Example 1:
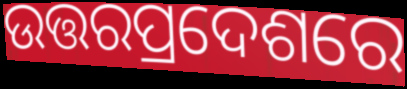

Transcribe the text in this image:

ଉତ୍ତରପ୍ରଦେଶରେ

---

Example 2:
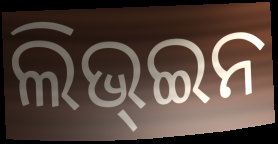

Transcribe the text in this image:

ଲିଭ୍ଇନ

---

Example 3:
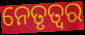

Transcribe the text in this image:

ନେତୃତ୍ଵର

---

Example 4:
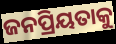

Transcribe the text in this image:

ଜନପ୍ରିୟତାକୁ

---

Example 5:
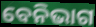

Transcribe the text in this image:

ବେନିଭାଗ